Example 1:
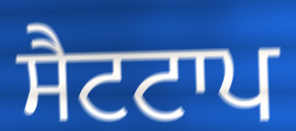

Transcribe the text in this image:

ਸੈਟਟਾਪ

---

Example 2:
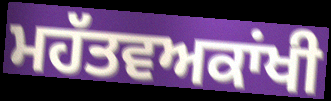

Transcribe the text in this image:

ਮਹੱਤਵਅਕਾਂਖੀ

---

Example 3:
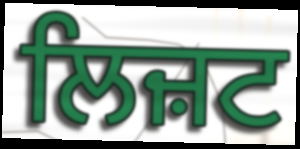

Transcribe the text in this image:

ਲਿਜ਼ਟ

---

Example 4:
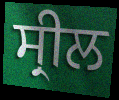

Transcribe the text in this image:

ਸ੍ਰੀਲ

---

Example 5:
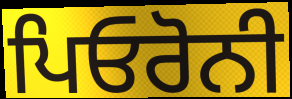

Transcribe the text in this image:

ਪਿਓਰੋਨੀ